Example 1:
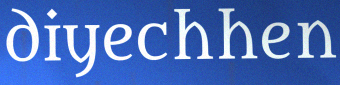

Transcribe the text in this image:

diyechhen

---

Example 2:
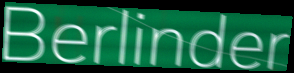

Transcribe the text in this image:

Berlinder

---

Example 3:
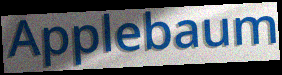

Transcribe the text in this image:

Applebaum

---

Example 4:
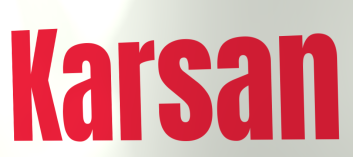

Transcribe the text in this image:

Karsan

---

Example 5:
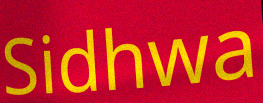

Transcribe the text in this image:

Sidhwa